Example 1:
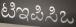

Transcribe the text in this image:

ಟಿಇಪಿಸಿಒ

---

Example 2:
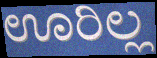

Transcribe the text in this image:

ಊರಿಲ್ಲ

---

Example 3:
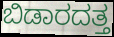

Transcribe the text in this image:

ಬಿಡಾರದತ್ತ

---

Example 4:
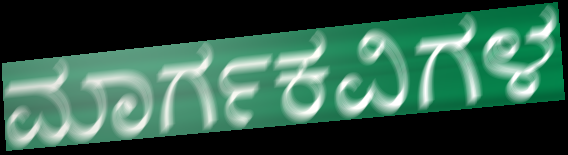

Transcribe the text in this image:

ಮಾರ್ಗಕವಿಗಳ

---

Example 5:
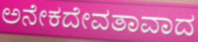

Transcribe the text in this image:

ಅನೇಕದೇವತಾವಾದ